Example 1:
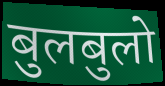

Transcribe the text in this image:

बुलबुलो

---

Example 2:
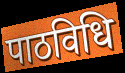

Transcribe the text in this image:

पाठविधि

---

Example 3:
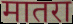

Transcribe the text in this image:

मातरा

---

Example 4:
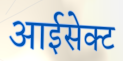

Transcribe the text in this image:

आईसेक्ट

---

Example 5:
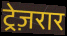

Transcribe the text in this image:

ट्रेज़रार